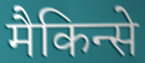
मैकिन्से